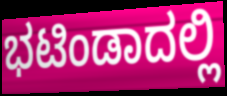
ಭಟಿಂಡಾದಲ್ಲಿ